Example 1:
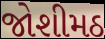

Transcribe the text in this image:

જોશીમઠ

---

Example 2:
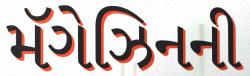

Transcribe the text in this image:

મૅગેઝિનની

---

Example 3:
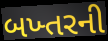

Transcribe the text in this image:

બખ્તરની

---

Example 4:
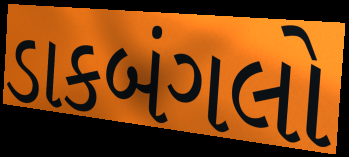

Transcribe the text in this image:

ડાકબંગલો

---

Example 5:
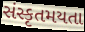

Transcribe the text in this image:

સંસ્કૃતમયતા